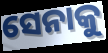
ସେନାକୁ